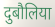
दुबौलिया